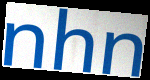
nhn